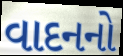
વાદનનો